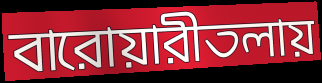
বারোয়ারীতলায়